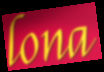
lona